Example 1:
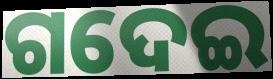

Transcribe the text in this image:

ଗଦେଇ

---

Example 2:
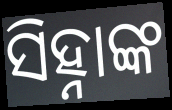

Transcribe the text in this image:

ସିହ୍ନାଙ୍କ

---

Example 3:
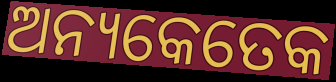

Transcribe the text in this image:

ଅନ୍ୟକେତେକ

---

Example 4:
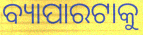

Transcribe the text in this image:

ବ୍ୟାପାରଟାକୁ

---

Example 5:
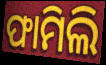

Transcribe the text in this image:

ଫାମିଲି